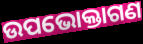
ଉପଭୋକ୍ତାଗଣ